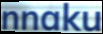
nnaku